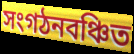
সংগঠনবঞ্চিত